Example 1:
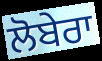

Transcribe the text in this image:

ਲੋਬੇਰਾ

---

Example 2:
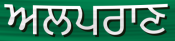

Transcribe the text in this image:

ਅਲਪਰਾਣ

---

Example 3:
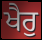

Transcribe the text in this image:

ਖੈਰੁ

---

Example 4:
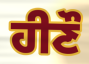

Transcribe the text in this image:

ਹੀਣੌ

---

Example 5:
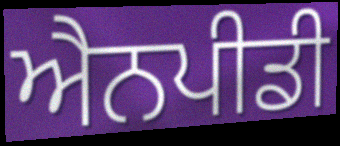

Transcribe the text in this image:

ਐਨਪੀਡੀ